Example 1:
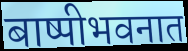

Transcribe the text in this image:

बाष्पीभवनात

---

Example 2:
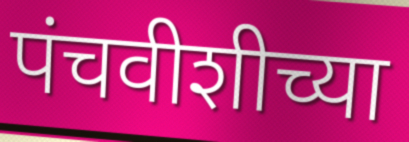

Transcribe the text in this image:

पंचवीशीच्या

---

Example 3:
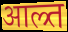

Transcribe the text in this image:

आल्त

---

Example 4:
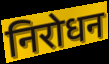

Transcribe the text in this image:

निरोधन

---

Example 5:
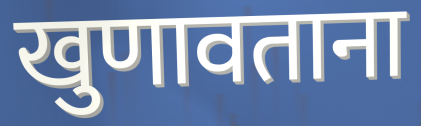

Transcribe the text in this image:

खुणावताना